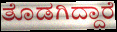
ತೊಡಗಿದ್ದಾರೆ